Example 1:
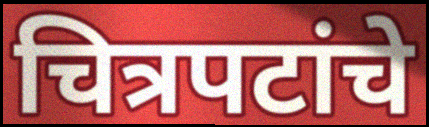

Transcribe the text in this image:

चित्रपटांचे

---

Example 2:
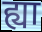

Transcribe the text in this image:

ह्या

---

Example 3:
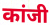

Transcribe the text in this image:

कांजी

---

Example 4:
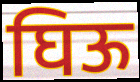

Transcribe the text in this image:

घिऊ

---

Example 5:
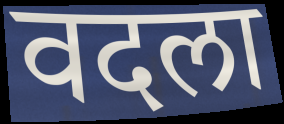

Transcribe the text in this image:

वदला